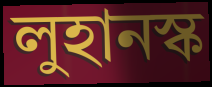
লুহানস্ক